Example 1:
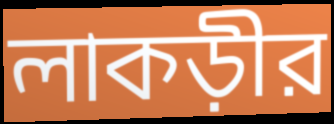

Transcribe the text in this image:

লাকড়ীর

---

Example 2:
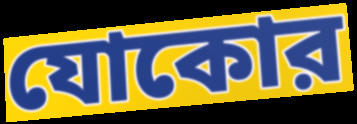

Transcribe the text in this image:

যোকোর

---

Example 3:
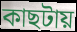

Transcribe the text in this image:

কাছটায়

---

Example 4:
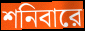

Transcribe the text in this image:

শনিবারে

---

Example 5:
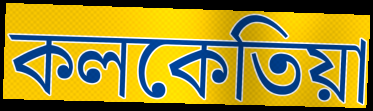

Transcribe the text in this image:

কলকেতিয়া